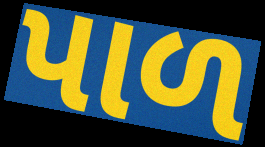
પાળ